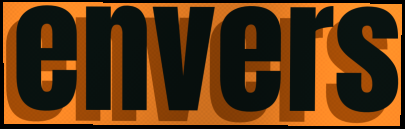
envers